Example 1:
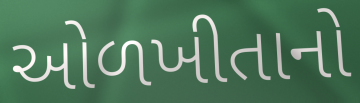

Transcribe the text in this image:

ઓળખીતાનો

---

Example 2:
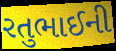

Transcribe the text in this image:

રતુભાઈની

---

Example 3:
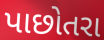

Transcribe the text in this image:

પાછોતરા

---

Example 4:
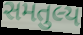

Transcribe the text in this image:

સમતુલ્ય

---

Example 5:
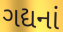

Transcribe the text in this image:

ગદ્યનાં